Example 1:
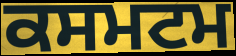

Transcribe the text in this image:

ਕਸਮਟਮ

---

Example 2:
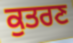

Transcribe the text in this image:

ਕੁਤਰਣ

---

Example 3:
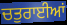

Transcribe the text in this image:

ਚਤੁਰਾਈਆਂ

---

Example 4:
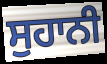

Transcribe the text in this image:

ਸੁਹਾਨੀ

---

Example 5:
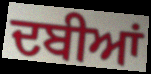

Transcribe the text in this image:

ਦਬੀਆਂ